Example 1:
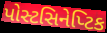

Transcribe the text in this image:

પોસ્ટસિનેપ્ટિક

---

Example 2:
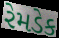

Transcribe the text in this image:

રેમડેક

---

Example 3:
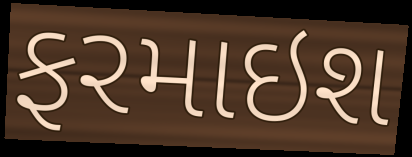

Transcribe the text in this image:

ફરમાઇશ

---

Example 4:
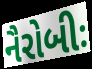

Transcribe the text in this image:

નૈરોબીઃ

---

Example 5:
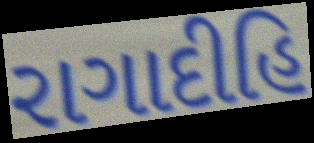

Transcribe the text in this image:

રાગાદીહિ